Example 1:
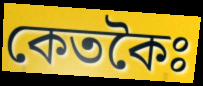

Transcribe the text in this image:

কেতকৈঃ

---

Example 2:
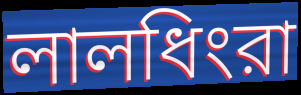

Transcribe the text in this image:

লালধিংরা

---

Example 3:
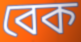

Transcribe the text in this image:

বেক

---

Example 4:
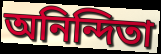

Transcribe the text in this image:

অনিন্দিতা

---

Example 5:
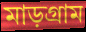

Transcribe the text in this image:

মাড়গ্রাম